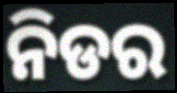
ନିଡର